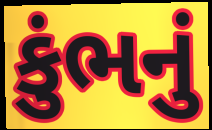
કુંભનું